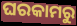
ଘରକାମରୁ